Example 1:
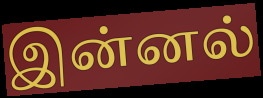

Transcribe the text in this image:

இன்னல்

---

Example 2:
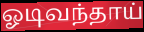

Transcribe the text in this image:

ஓடிவந்தாய்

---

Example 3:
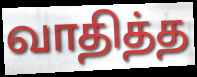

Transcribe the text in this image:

வாதித்த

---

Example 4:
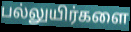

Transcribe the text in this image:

பல்லுயிர்களை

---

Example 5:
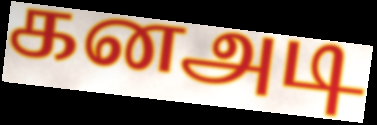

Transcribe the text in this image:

கனஅடி